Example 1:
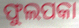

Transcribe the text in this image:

ଫୁଲପକା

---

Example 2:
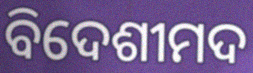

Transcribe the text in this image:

ବିଦେଶୀମଦ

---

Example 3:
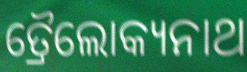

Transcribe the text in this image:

ତ୍ରୈଲୋକ୍ୟନାଥ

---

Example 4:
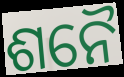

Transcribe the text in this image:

ଶନୈ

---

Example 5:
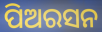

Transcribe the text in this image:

ପିଅରସନ